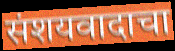
संशयवादाचा